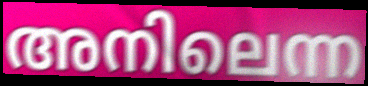
അനിലെന്ന